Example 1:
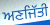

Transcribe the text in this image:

ਅਣਜਿੱਤੀ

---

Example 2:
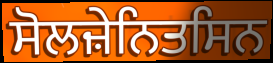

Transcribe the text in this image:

ਸੋਲਜ਼ੇਨਿਤਸਿਨ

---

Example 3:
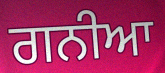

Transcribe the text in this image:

ਗਨੀਆ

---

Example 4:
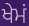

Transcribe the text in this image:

ਖੇਮਂ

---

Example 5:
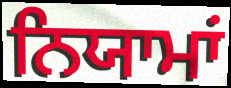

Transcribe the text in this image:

ਨਿਯਾਮਾਂ